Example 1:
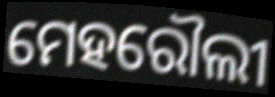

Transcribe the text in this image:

ମେହରୌଲୀ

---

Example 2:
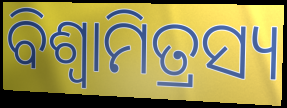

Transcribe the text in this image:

ବିଶ୍ଵାମିତ୍ରସ୍ୟ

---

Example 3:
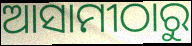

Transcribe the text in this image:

ଆସାମୀଠାରୁ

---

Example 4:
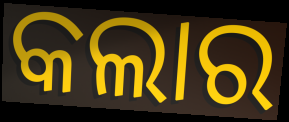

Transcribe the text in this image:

କଲାର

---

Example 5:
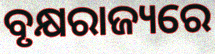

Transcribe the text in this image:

ବୃକ୍ଷରାଜ୍ୟରେ